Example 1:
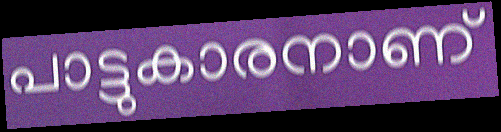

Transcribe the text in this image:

പാട്ടുകാരനാണ്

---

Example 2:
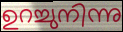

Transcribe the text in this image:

ഉറച്ചുനിന്നു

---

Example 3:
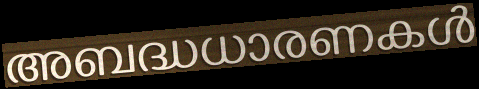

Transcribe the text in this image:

അബദ്ധധാരണകൾ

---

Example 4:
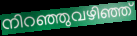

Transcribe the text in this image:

നിറഞ്ഞുവഴിഞ്ഞ്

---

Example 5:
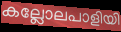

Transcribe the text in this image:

കല്ലോലപാളിയി